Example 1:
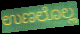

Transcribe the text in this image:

ಉಣಲೊಲ್ಲ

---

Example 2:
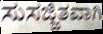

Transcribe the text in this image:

ಸುಸಜ್ಜಿತವಾಗಿ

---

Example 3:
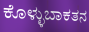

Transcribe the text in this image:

ಕೊಳ್ಳುಬಾಕತನ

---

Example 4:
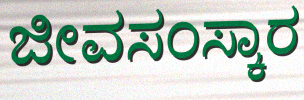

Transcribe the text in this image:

ಜೀವಸಂಸ್ಕಾರ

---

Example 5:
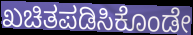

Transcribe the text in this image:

ಖಚಿತಪಡಿಸಿಕೊಂಡೇ